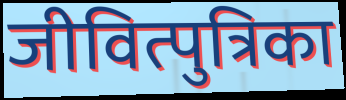
जीवित्पुत्रिका